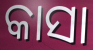
କାସା